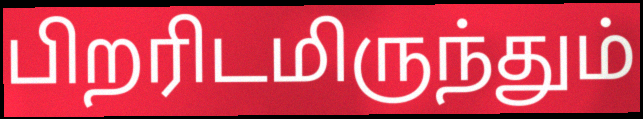
பிறரிடமிருந்தும்